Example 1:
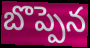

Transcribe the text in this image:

బొప్పెన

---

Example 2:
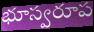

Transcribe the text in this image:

భూస్వరూప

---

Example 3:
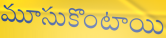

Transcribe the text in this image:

మూసుకొంటాయి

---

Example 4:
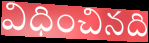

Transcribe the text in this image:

విధించినది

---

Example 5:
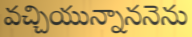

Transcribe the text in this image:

వచ్చియున్నాననెను